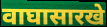
वाघासारखे